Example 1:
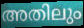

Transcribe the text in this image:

അതിലും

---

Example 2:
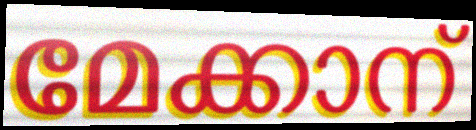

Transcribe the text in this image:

മേക്കാന്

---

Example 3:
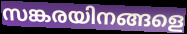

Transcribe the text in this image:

സങ്കരയിനങ്ങളെ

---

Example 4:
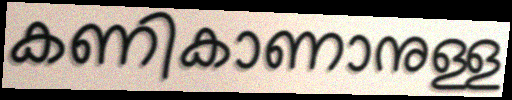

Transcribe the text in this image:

കണികാണാനുള്ള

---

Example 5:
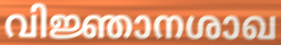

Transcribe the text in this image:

വിജ്ഞാനശാഖ